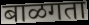
बाळगता